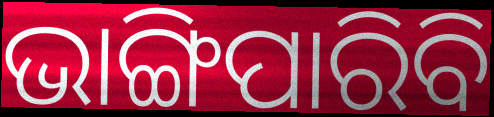
ଭାଙ୍ଗିପାରିବି